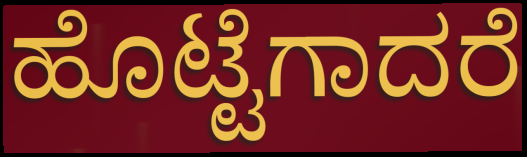
ಹೊಟ್ಟೆಗಾದರೆ